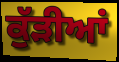
ਕੁੱੜੀਆਂ